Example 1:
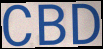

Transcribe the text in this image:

CBD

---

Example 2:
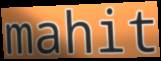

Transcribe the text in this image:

mahit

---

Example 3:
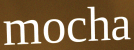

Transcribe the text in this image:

mocha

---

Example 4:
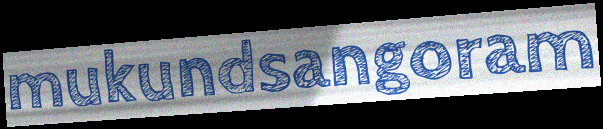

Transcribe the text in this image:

mukundsangoram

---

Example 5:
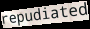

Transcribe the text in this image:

repudiated